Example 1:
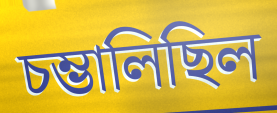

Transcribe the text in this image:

চম্ভালিছিল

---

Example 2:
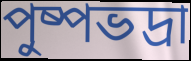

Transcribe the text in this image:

পুষ্পভদ্ৰা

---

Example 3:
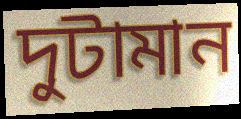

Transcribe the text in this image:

দুটামান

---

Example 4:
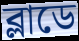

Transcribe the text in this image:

ব্লাডে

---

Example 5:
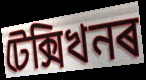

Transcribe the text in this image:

টেক্সিখনৰ